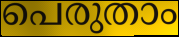
പെരുതാം